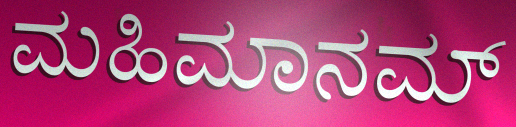
ಮಹಿಮಾನಮ್